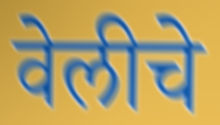
वेलीचे